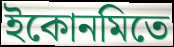
ইকোনমিতে